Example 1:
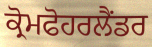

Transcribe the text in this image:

ਕ੍ਰੋਮਫੋਹਰਲੈਂਡਰ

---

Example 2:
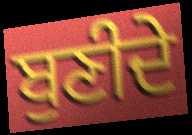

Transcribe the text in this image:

ਬੁਣੀਦੇ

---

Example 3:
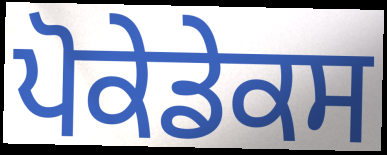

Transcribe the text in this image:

ਪੋਕੇਡੇਕਸ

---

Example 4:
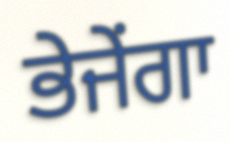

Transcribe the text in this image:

ਭੇਜੇਂਗਾ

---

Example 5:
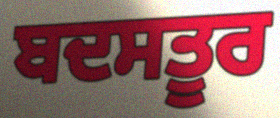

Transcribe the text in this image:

ਬਦਸਤੂਰ